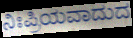
ನಿಃಪ್ರಿಯವಾದುದ